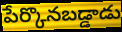
పేర్కొనబడ్డాడు